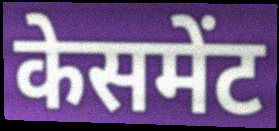
केसमेंट